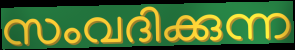
സംവദിക്കുന്ന